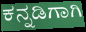
ಕನ್ನಡಿಗಾಗಿ